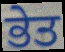
ਭੇਤ